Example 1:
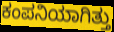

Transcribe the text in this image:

ಕಂಪನಿಯಾಗಿತ್ತು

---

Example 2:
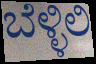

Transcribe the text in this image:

ಬೆಳ್ಳಿಲಿ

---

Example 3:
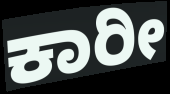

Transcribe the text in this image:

ಕಾರೀ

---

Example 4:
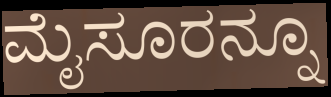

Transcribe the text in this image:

ಮೈಸೂರನ್ನೂ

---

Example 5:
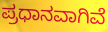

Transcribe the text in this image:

ಪ್ರಧಾನವಾಗಿವೆ